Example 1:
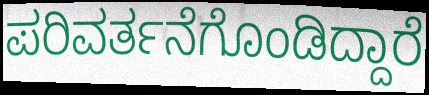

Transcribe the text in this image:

ಪರಿವರ್ತನೆಗೊಂಡಿದ್ದಾರೆ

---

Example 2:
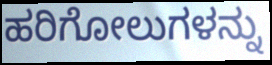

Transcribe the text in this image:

ಹರಿಗೋಲುಗಳನ್ನು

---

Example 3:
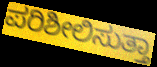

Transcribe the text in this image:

ಪರಿಶೀಲಿಸುತ್ತಾ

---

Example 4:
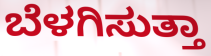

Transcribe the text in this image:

ಬೆಳಗಿಸುತ್ತಾ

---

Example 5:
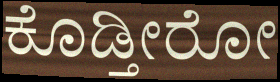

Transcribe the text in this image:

ಕೊಡ್ತೀರೋ